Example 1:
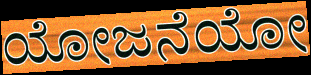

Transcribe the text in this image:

ಯೋಜನೆಯೋ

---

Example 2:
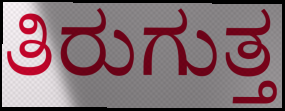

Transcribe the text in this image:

ತಿರುಗುತ್ತ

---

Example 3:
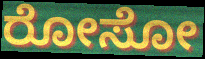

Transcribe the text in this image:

ರೋಸೋ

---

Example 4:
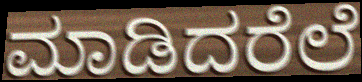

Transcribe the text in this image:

ಮಾಡಿದರೆಲೆ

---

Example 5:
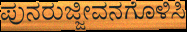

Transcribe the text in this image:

ಪುನರುಜ್ಜೀವನಗೊಳಿಸಿ